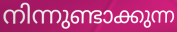
നിന്നുണ്ടാക്കുന്ന